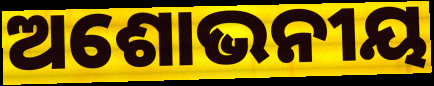
ଅଶୋଭନୀୟ